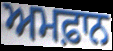
ਅਮਫ਼ਾਨ